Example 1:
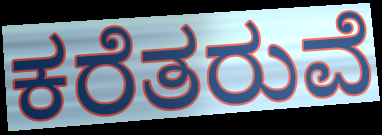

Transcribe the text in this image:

ಕರೆತರುವೆ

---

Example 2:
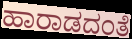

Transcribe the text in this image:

ಹಾರಾಡದಂತೆ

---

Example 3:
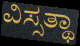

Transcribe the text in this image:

ವಿಸ್ಸತ್ಥಾ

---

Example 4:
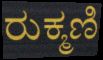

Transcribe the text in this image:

ರುಕ್ಮಣಿ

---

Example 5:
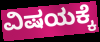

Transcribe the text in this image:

ವಿಷಯಕ್ಕೆ